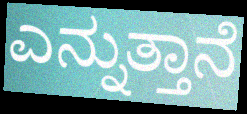
ಎನ್ನುತ್ತಾನೆ